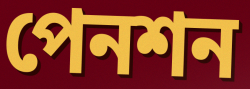
পেনশন